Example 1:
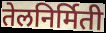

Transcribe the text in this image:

तेलनिर्मिती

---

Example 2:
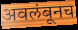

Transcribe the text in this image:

अवलंबूनच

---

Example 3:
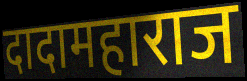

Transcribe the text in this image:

दादामहाराज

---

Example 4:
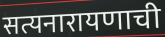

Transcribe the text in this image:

सत्यनारायणाची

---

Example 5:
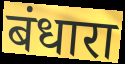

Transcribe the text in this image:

बंधारा